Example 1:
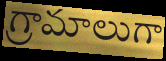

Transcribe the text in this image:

గ్రామాలుగా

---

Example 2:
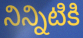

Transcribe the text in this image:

నిన్నిటికి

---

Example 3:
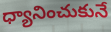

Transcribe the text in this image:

ధ్యానించుకునే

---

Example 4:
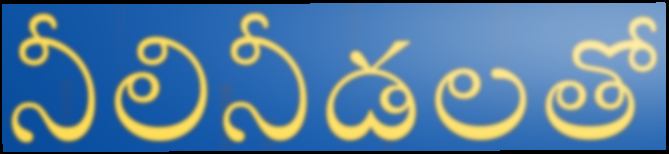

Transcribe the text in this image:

నీలినీడలతో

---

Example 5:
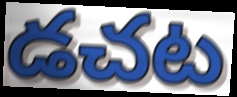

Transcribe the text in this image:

డచట